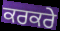
ਕਰਕਰੇ